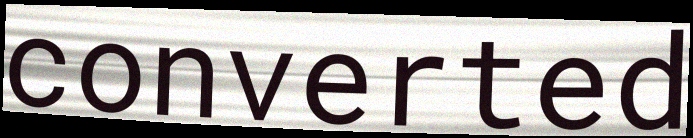
converted